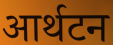
आर्थटन